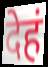
देहं